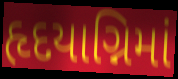
હૃદયાગ્નિમાં